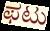
ಫಟು